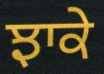
ਝਾਕੇ